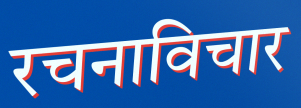
रचनाविचार